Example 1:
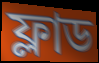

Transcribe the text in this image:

ফ্লাড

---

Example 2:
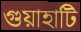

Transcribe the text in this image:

গুয়াহাটি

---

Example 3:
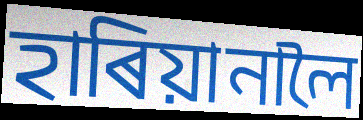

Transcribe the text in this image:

হাৰিয়ানালৈ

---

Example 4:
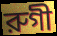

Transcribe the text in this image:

ৰুগী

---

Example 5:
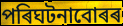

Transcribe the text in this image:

পৰিঘটনাবোৰৰ